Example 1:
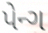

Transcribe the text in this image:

પેન્ગ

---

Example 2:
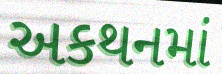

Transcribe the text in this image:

અકથનમાં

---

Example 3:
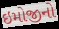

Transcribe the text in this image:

ઇમોજીનો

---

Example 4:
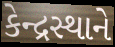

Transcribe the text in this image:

કેન્દ્રસ્થાને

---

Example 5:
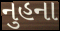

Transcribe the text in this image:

નુહના